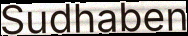
Sudhaben